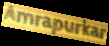
Amrapurkar